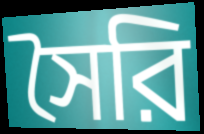
সৈরি